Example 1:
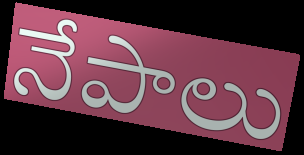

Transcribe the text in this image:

నేపాలు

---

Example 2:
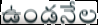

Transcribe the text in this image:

ఉండనేల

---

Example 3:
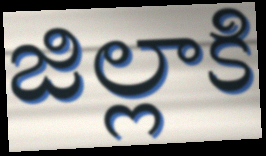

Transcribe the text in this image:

జిల్లాకి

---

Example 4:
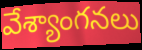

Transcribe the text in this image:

వేశ్యాంగనలు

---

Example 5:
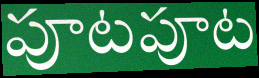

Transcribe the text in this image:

పూటపూట